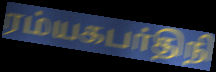
ரம்யகபர்திநி